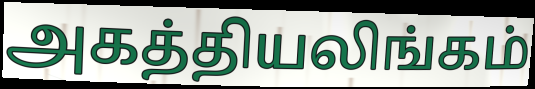
அகத்தியலிங்கம்